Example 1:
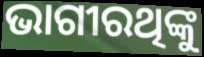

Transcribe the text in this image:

ଭାଗୀରଥିଙ୍କୁ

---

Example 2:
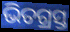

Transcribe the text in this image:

ଭିତଗ୍ରସ୍ତ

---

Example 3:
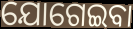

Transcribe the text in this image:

ଯୋଗେଇବା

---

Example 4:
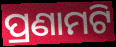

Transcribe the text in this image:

ପ୍ରଣାମଟି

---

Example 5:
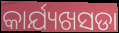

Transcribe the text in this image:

କାର୍ଯ୍ୟଖସଡା